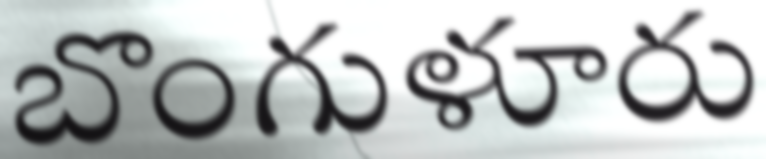
బొంగుళూరు